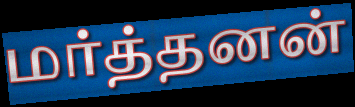
மர்த்தனன்